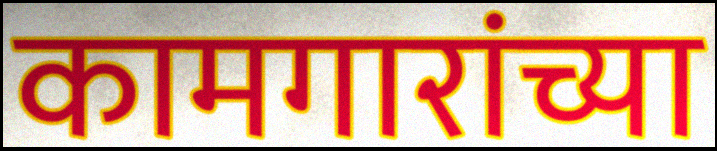
कामगारांच्या